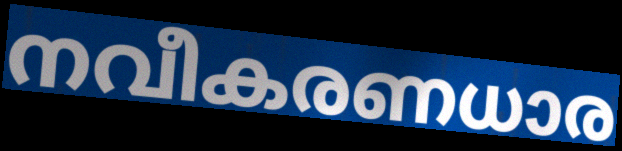
നവീകരണധാര